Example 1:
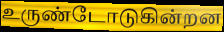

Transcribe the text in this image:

உருண்டோடுகின்றன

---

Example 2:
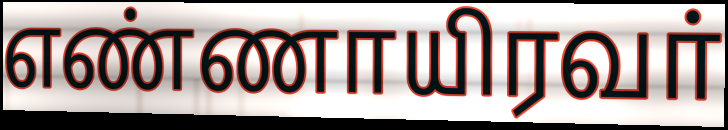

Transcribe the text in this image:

எண்ணாயிரவர்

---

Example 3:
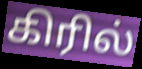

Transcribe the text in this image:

கிரில்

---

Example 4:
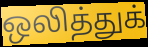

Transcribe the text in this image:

ஒலித்துக்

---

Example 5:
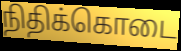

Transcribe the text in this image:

நிதிக்கொடை